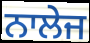
ਨਾਲੇਜ